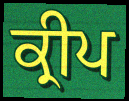
ਕ੍ਰੀਪ